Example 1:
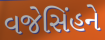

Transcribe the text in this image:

વજેસિંહને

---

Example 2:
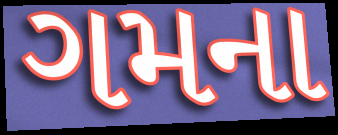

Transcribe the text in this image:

ગમના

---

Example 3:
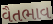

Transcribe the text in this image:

વૈતભાવ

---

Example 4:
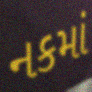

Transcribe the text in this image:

નકમાં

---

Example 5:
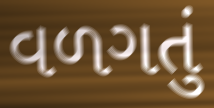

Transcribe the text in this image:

વળગતું